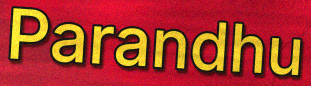
Parandhu